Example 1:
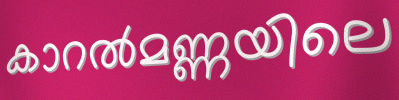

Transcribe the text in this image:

കാറൽമണ്ണയിലെ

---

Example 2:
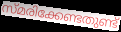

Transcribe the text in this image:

സ്മരിക്കേണ്ടതുണ്ട്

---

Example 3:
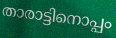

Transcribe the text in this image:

താരാട്ടിനൊപ്പം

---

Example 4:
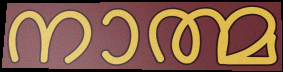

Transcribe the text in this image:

നാത്മ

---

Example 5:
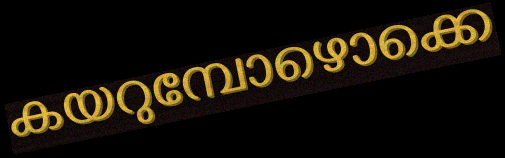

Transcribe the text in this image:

കയറുമ്പോഴൊക്കെ